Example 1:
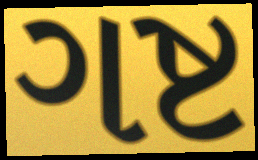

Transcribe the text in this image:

ગષ્ટ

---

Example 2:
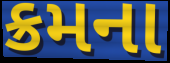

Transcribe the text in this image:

ક્રમના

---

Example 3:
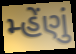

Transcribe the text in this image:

મ્હેંણું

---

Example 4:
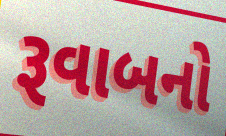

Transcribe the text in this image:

રૂવાબનો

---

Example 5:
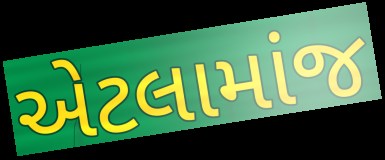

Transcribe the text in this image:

એટલામાંજ